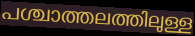
പശ്ചാത്തലത്തിലുള്ള